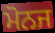
ਮੋਨਜ